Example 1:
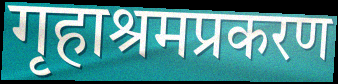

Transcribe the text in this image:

गृहाश्रमप्रकरण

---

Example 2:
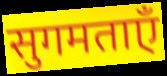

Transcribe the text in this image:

सुगमताएँ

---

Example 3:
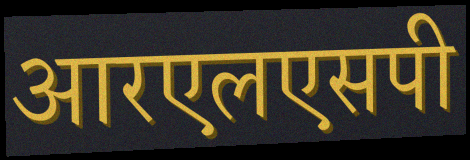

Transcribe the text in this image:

आरएलएसपी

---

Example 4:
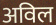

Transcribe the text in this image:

अविल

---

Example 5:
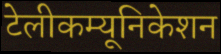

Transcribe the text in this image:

टेलीकम्यूनिकेशन